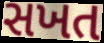
સખત